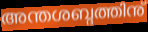
അന്തശബ്ദത്തിനു്